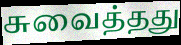
சுவைத்தது